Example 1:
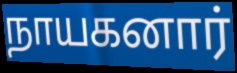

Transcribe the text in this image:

நாயகனார்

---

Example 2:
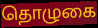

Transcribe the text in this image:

தொழுகை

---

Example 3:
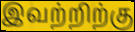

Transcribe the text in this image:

இவற்றிற்கு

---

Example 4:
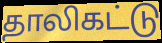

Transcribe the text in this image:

தாலிகட்டு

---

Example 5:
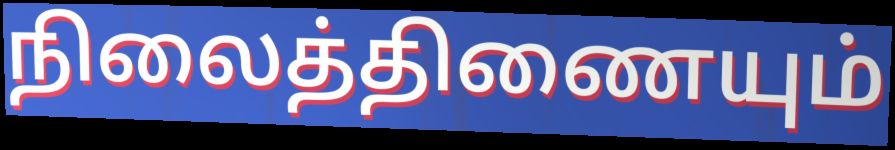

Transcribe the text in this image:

நிலைத்திணையும்